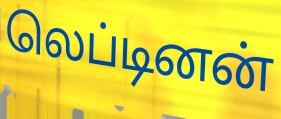
லெப்டினன்